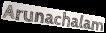
Arunachalam